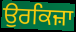
ਉਰਕਿਜ਼ਾ